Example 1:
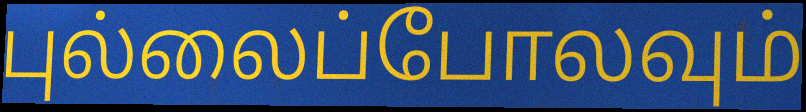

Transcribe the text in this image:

புல்லைப்போலவும்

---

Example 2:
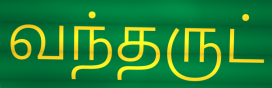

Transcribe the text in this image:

வந்தருட்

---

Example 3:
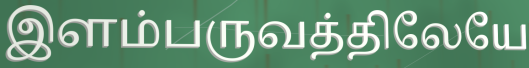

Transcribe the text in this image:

இளம்பருவத்திலேயே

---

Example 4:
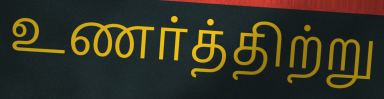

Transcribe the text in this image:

உணர்த்திற்று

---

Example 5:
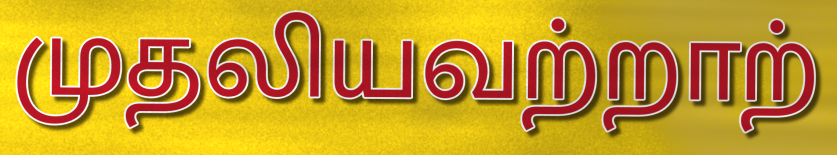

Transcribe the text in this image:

முதலியவற்றாற்